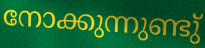
നോക്കുന്നുണ്ടു്